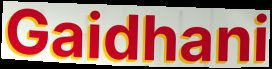
Gaidhani